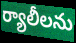
ర్యాలీలను